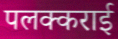
पलक्कराई